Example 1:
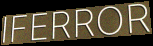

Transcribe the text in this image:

IFERROR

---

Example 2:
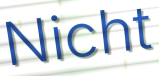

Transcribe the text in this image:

Nicht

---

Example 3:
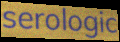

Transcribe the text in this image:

serologic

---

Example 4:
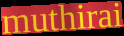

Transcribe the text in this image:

muthirai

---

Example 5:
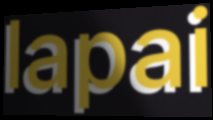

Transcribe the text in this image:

lapai